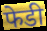
फेडी